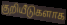
குறியீடுகளாக